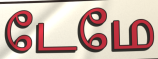
டேமே